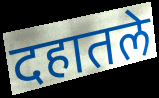
दहातले